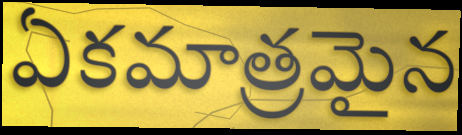
ఏకమాత్రమైన